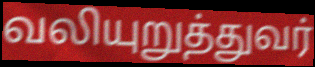
வலியுறுத்துவர்